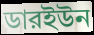
ডারইউন